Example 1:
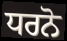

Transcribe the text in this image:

ਧਰਨੋ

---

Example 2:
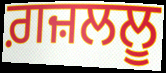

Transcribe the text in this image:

ਗ਼ਜ਼ਲਲੂ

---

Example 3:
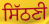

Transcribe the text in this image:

ਸਿੱਠਣੀ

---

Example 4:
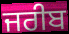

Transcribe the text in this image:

ਜਰੀਬ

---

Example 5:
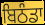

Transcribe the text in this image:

ਬਿਠੰਡਾ